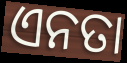
ଏନତା